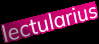
lectularius